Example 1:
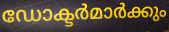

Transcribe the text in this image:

ഡോക്ടർമാർക്കും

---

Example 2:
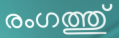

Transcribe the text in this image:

രംഗത്തു്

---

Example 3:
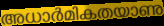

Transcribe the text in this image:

അധാർമികതയാണു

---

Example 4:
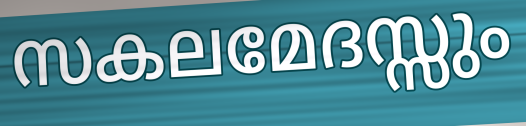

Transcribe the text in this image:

സകലമേദസ്സും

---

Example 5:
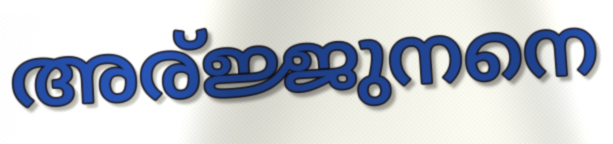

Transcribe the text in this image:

അര്ജ്ജുനനെ